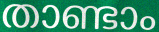
താണ്ടാം